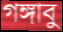
গঙ্গাবু